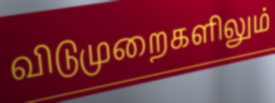
விடுமுறைகளிலும்